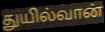
துயில்வான்